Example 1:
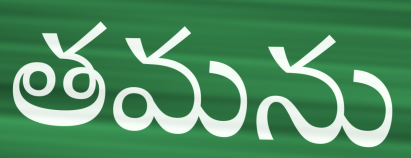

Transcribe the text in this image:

తమను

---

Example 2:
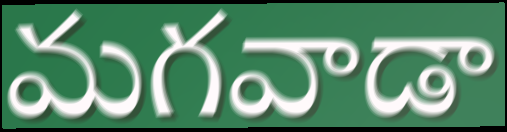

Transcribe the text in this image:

మగవాడా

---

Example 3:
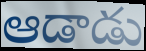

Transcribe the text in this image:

ఆడాడు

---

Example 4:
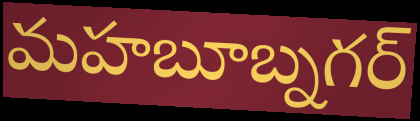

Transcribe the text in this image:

మహబూబ్నగర్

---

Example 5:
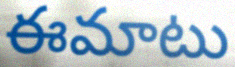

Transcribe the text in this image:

ఈమాటు